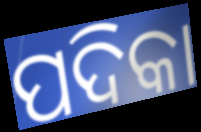
ପଦିକା